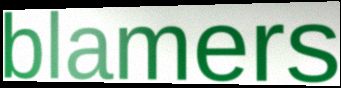
blamers